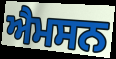
ਐਮਸਨ